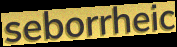
seborrheic